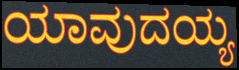
ಯಾವುದಯ್ಯ